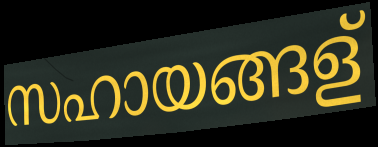
സഹായങ്ങള്